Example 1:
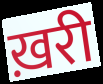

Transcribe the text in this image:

ख़री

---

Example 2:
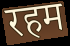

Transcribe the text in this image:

रहम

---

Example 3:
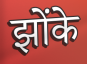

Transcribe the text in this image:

झोंके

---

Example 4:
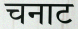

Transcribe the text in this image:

चनाट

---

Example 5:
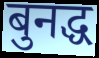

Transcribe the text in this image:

बुनद्ध